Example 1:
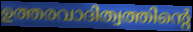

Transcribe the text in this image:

ഉത്തരവാദിത്വത്തിന്റെ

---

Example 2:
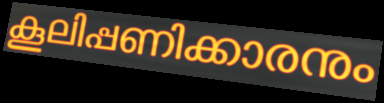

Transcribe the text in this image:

കൂലിപ്പണിക്കാരനും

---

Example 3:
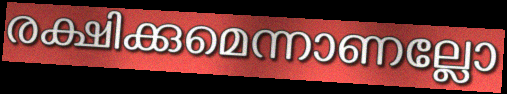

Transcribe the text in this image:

രക്ഷിക്കുമെന്നാണല്ലോ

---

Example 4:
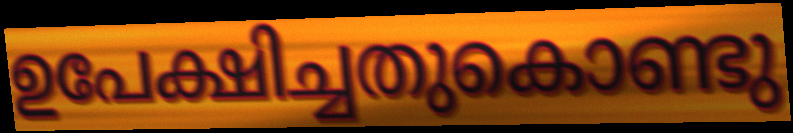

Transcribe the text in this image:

ഉപേക്ഷിച്ചതുകൊണ്ടു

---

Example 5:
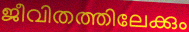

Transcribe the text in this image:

ജീവിതത്തിലേക്കും